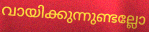
വായിക്കുന്നുണ്ടല്ലോ